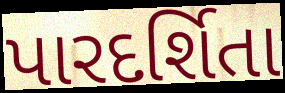
પારદર્શિતા